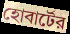
হোবার্টের